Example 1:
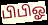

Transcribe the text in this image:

பிபிஓ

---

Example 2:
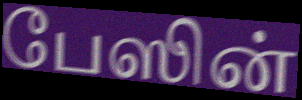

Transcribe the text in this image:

பேஸின்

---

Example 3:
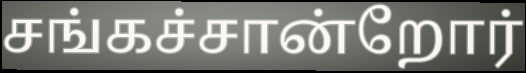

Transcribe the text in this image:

சங்கச்சான்றோர்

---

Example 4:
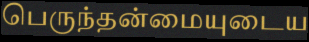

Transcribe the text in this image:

பெருந்தன்மையுடைய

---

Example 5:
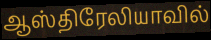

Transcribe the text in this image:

ஆஸ்திரேலியாவில்